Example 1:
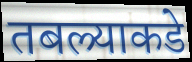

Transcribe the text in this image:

तबल्याकडे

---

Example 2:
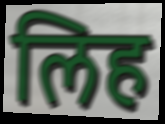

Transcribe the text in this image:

लिह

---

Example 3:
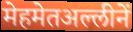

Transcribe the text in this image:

मेहमेतअल्लीनें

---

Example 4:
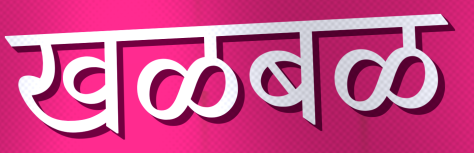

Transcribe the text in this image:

खळबळ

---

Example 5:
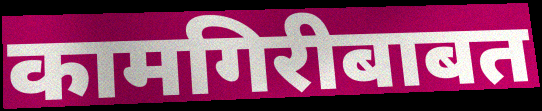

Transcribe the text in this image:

कामगिरीबाबत